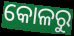
କୋଳରୁ